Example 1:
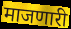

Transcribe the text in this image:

माजणारी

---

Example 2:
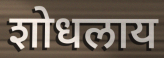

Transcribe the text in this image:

शोधलाय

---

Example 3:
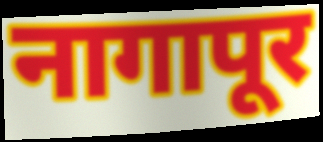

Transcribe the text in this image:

नागापूर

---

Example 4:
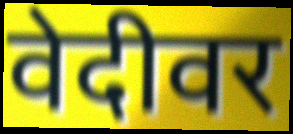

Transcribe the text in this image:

वेदीवर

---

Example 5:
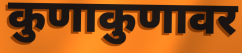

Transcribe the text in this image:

कुणाकुणावर